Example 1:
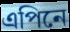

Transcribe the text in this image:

এপিনে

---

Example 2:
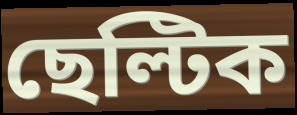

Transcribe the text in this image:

ছেল্টিক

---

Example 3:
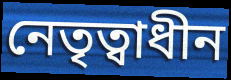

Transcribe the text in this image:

নেতৃত্বাধীন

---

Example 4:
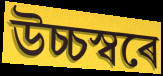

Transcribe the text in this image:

উচ্চস্বৰে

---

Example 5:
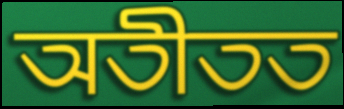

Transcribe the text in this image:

অতীতত